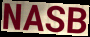
NASB